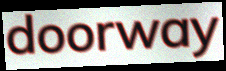
doorway